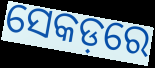
ସେକଡ଼ରେ